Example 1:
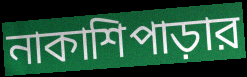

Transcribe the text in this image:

নাকাশিপাড়ার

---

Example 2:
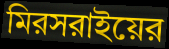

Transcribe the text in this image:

মিরসরাইয়ের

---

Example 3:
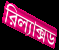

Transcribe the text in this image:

রিল্যাক্সড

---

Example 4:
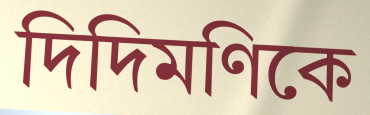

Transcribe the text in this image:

দিদিমণিকে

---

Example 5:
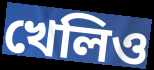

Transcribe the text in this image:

খেলিও